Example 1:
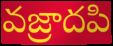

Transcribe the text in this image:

వజ్రాదపి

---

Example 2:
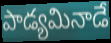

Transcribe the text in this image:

పాడ్యమినాడే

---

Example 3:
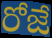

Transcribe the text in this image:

రోజే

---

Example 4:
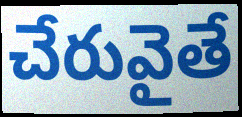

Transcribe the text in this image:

చేరువైతే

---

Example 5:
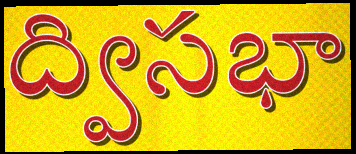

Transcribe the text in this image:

ద్విసభా